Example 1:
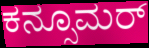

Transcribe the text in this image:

ಕನ್ಸೂಮರ್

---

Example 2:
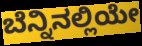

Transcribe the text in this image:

ಬೆನ್ನಿನಲ್ಲಿಯೇ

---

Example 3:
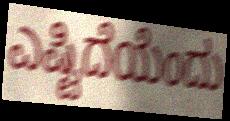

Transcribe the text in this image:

ಎಷ್ಟಿದೆಯೆಂದು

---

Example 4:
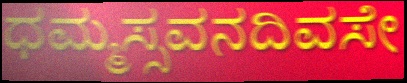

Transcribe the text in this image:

ಧಮ್ಮಸ್ಸವನದಿವಸೇ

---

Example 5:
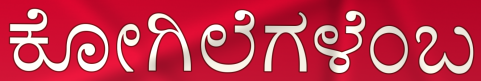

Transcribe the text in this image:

ಕೋಗಿಲೆಗಳೆಂಬ